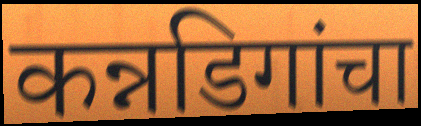
कन्नडिगांचा